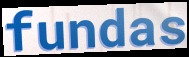
fundas